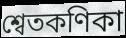
শ্বেতকণিকা